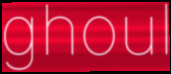
ghoul